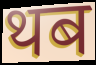
थब